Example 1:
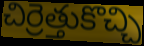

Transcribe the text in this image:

చిర్రెత్తుకొచ్చి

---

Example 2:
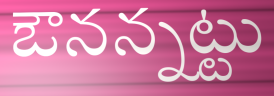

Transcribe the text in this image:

ఔనన్నట్టు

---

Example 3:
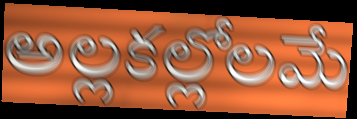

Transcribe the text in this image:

అల్లకల్లోలమే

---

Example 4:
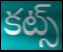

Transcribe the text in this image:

కట్స్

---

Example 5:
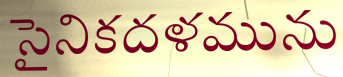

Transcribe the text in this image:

సైనికదళమును